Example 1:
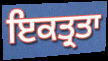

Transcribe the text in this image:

ਇਕਤ੍ਰਤਾ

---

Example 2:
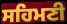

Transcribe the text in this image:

ਸਹਿਮਣੀ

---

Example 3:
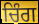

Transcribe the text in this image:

ਚਿੰਗ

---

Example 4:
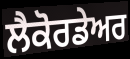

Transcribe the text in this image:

ਲੈਕੋਰਡੇਅਰ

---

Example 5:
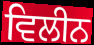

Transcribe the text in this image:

ਵਿਲੀਨ